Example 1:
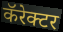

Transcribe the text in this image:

कॅरेक्टर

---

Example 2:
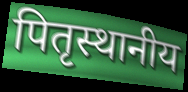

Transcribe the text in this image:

पितृस्थानीय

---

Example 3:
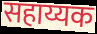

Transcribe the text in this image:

सहाय्यक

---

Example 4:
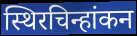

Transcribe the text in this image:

स्थिरचिन्हांकन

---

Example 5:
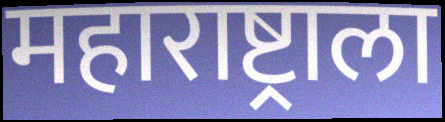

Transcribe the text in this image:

महाराष्ट्राला